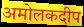
अमोलकदीप